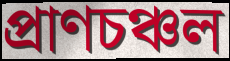
প্রাণচঞ্চল